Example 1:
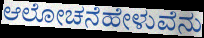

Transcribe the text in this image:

ಆಲೋಚನೆಹೇಳುವೆನು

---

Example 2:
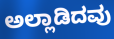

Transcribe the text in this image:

ಅಲ್ಲಾಡಿದವು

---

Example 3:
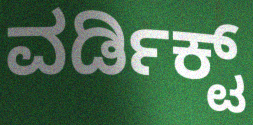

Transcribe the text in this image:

ವರ್ಡಿಕ್ಟ್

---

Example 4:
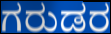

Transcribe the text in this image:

ಗರುಡರ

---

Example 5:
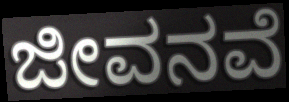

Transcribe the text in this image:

ಜೀವನವೆ